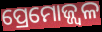
ପ୍ରେମୋଜ୍ଜ୍ୱଳ